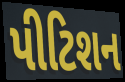
પીટિશન